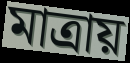
মাত্ৰায়